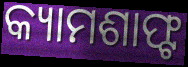
କ୍ୟାମଶାଫ୍ଟ